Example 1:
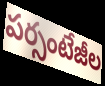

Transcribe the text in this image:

పర్సంటేజీల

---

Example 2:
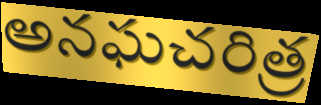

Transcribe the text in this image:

అనఘచరిత్ర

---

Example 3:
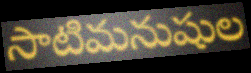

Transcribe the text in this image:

సాటిమనుషుల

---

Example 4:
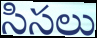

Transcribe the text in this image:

సిసలు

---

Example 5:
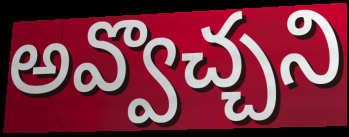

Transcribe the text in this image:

అవ్వొచ్చని